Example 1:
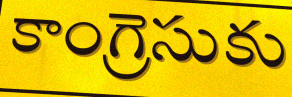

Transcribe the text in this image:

కాంగ్రెసుకు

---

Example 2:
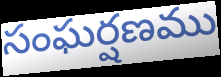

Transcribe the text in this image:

సంఘర్షణము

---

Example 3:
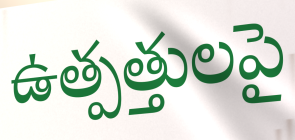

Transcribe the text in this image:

ఉత్పత్తులపై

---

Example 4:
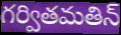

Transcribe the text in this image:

గర్వితమతిన్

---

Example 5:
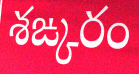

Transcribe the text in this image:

శఙ్కరం